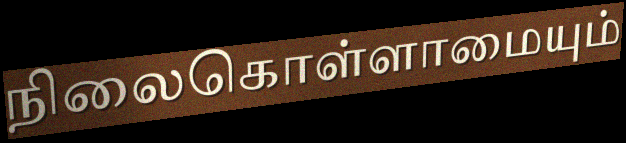
நிலைகொள்ளாமையும்